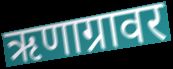
ऋणाग्रावर